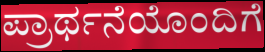
ಪ್ರಾರ್ಥನೆಯೊಂದಿಗೆ